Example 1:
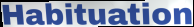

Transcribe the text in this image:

Habituation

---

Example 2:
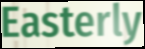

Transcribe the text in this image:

Easterly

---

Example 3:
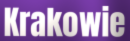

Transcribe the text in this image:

Krakowie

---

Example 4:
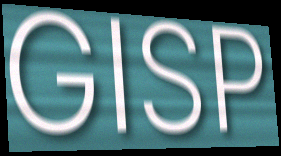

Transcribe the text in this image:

GISP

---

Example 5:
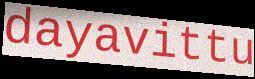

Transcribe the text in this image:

dayavittu